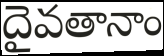
దైవతానాం